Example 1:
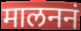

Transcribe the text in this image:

मालननं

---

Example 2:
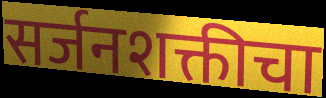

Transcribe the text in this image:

सर्जनशक्तीचा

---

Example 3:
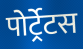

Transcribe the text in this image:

पोर्ट्रेटस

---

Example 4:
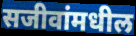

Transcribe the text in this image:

सजीवांमधील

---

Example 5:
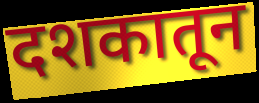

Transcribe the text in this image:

दशकातून